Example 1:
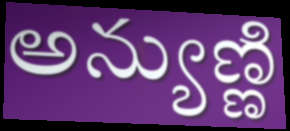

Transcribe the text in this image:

అన్యుణ్ణి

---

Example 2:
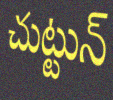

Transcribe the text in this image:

చుట్టున్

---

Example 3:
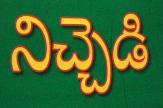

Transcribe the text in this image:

నిచ్చెడి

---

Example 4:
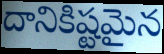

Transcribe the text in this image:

దానికిష్టమైన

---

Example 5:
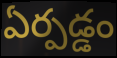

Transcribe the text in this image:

ఏర్పడ్డం